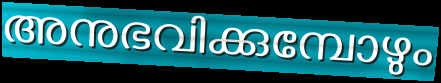
അനുഭവിക്കുമ്പോഴും